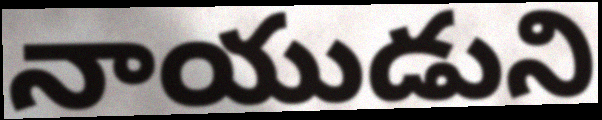
నాయుడుని